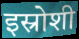
इस्रोशी